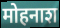
मोहनाश